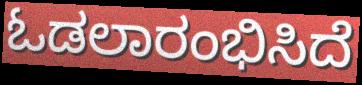
ಓಡಲಾರಂಭಿಸಿದೆ